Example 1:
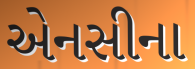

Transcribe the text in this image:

એનસીના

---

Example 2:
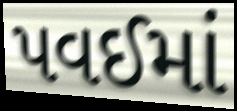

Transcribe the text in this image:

પવઈમાં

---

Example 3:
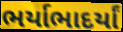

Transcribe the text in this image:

ભર્યાભાદર્યાં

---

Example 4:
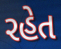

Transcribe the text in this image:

રહેત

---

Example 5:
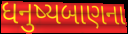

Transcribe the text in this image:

ધનુષ્યબાણના